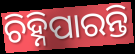
ଚିହ୍ନିପାରନ୍ତି